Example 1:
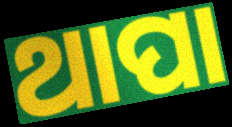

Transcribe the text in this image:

ଥାପା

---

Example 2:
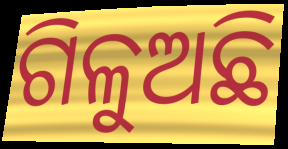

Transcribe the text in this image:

ଗିଳୁଅଛି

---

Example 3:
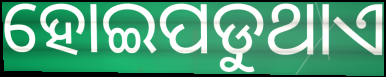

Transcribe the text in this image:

ହୋଇପଡୁଥାଏ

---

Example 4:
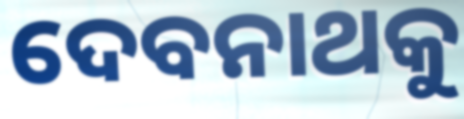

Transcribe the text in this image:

ଦେବନାଥକୁ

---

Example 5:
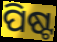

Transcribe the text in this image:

ପିଷ୍ଟ